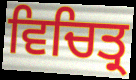
ਵਿਚਿਤ੍ਰ